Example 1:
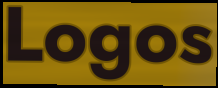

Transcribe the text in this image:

Logos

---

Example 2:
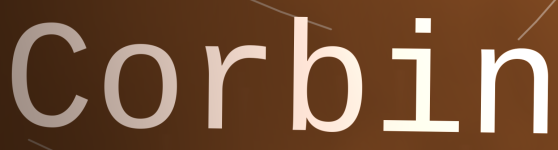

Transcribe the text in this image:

Corbin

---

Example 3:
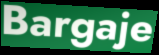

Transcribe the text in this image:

Bargaje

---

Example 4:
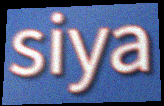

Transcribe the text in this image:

siya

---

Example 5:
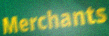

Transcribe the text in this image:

Merchants